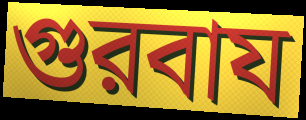
গুরবায